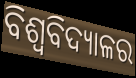
ବିଶ୍ୱବିଦ୍ୟାଳର